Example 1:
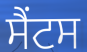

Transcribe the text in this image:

ਸੈਂਟਸ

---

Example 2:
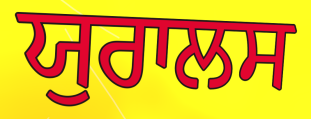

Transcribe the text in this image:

ਯੁਰਾਲਸ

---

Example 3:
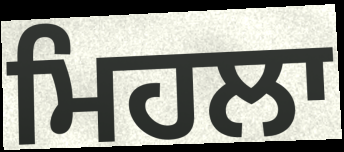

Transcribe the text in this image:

ਮਿਹਲਾ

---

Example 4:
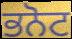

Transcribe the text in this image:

ਭਨੋਟ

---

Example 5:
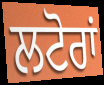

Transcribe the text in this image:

ਲਟੋਰਾਂ